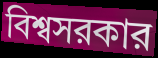
বিশ্বসরকার